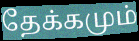
தேக்கமும்